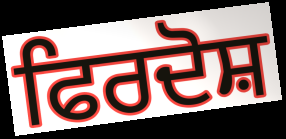
ਫਿਰਦੋਸ਼